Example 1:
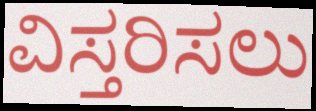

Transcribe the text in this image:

ವಿಸ್ತರಿಸಲು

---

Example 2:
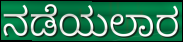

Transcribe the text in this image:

ನಡೆಯಲಾರ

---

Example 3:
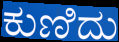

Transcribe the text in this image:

ಕುಣಿದು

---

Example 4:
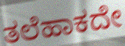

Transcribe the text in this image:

ತಲೆಹಾಕದೇ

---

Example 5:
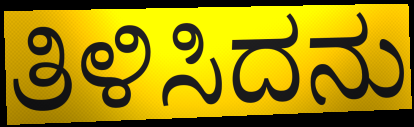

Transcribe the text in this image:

ತಿಳಿಸಿದನು